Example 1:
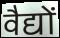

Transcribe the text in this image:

वैद्यों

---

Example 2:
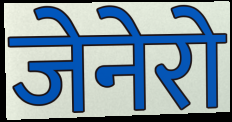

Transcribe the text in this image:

जेनेरो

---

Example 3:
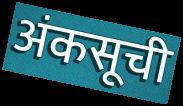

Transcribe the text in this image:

अंकसूची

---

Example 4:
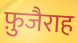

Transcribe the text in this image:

फ़ुजैराह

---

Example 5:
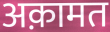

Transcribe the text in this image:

अक़ामत